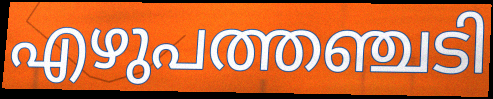
എഴുപത്തഞ്ചടി